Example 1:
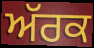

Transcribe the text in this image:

ਅੱਰਕ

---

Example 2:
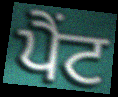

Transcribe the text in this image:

ਪੈਂਟ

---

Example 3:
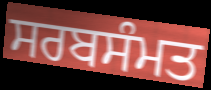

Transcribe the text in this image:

ਸਰਬਸੰਮਤ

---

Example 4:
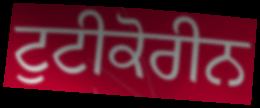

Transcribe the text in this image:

ਟੁਟੀਕੋਰੀਨ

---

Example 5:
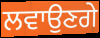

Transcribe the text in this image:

ਲਵਾਉਣਗੇ